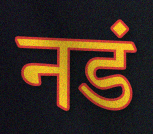
नडं